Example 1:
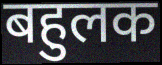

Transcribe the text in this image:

बहुलक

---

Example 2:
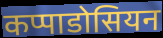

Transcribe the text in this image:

कप्पाडोसियन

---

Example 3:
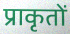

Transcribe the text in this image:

प्राकृतों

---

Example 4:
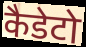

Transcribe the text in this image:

कैडेटो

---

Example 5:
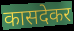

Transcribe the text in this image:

कासदेकर